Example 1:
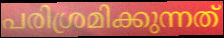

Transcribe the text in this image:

പരിശ്രമിക്കുന്നത്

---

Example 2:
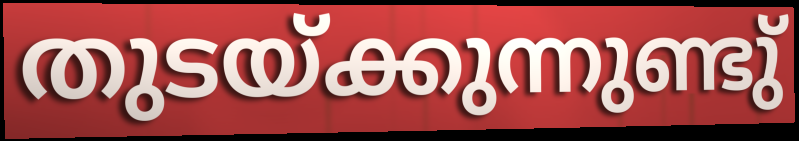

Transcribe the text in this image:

തുടയ്ക്കുന്നുണ്ടു്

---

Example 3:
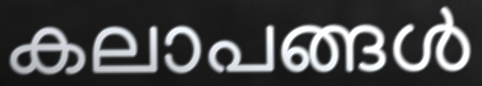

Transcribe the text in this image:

കലാപങ്ങൾ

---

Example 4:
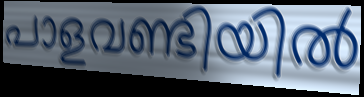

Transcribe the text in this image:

പാളവണ്ടിയിൽ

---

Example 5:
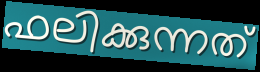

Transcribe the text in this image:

ഫലിക്കുന്നത്